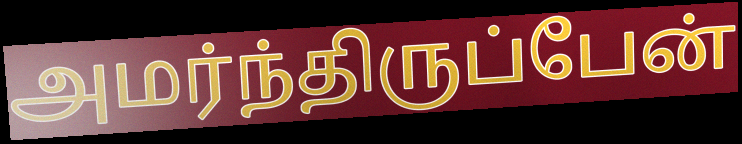
அமர்ந்திருப்பேன்